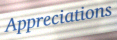
Appreciations